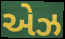
એઝ